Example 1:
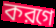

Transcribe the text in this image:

করগে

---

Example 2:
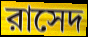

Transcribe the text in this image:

রাসেদ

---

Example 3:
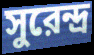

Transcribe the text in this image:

সুরেন্দ্র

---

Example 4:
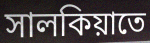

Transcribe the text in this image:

সালকিয়াতে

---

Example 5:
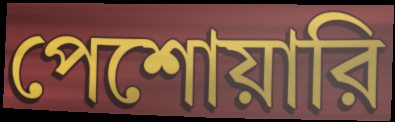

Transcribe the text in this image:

পেশোয়ারি